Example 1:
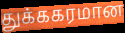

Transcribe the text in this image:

துக்ககரமான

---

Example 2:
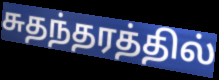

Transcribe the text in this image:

சுதந்தரத்தில்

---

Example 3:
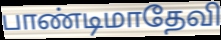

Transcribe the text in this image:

பாண்டிமாதேவி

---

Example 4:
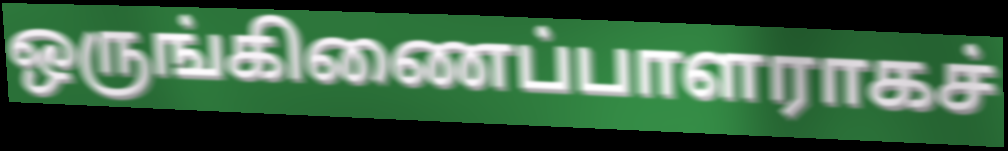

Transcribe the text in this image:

ஒருங்கிணைப்பாளராகச்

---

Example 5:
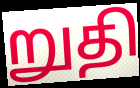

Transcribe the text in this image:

றுதி